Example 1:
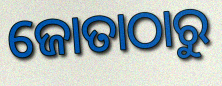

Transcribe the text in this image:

ଜୋତାଠାରୁ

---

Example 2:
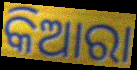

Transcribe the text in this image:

କିଆରା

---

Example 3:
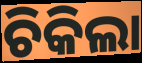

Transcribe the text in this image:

ଚିକିଲା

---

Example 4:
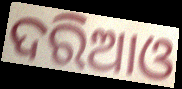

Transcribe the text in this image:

ଦରିଆଓ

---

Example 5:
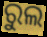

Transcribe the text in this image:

ରୁଲ